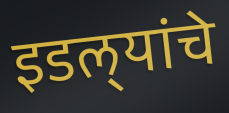
इडल्यांचे